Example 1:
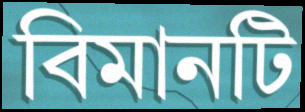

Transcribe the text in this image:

বিমানটি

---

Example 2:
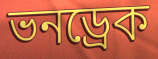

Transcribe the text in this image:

ভনড্রেক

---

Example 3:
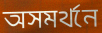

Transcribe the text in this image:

অসমর্থনে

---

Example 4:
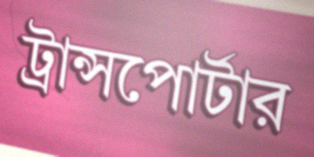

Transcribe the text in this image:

ট্রান্সপোর্টার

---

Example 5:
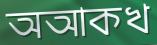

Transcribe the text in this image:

অআকখ